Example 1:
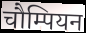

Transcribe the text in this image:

चौम्पियन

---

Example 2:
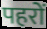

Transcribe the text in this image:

पहरों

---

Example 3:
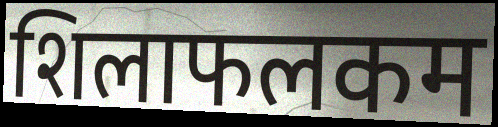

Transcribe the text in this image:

शिलाफलकम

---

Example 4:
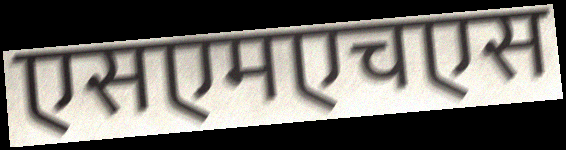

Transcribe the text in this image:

एसएमएचएस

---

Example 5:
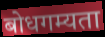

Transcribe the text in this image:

बोधगम्यता